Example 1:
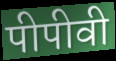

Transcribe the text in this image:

पीपीवी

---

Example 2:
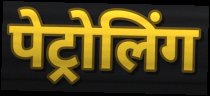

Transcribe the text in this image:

पेट्रोलिंग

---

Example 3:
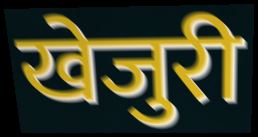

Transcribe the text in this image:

खेजुरी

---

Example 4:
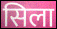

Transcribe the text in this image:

सिला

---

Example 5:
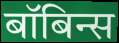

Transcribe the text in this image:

बॉबिन्स